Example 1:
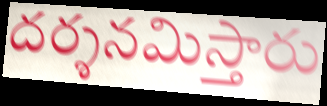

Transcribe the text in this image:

దర్శనమిస్తారు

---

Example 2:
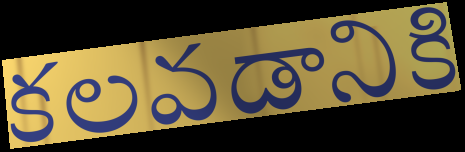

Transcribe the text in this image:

కలవడానికి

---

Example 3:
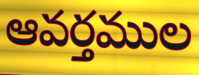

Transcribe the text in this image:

ఆవర్తముల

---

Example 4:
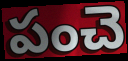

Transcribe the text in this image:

పంచె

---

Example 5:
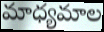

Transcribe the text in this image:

మాధ్యమాల